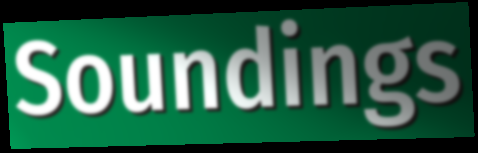
Soundings